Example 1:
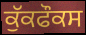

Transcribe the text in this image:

ਕੁੱਕਫੌਕਸ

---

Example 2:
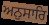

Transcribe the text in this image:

ਅਨੁਸਾਰਿ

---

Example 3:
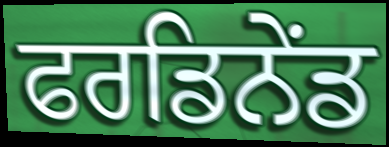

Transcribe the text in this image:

ਫਰਡਿਨੇਂਡ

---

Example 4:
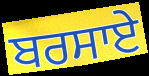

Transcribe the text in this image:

ਬਰਸਾਏ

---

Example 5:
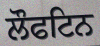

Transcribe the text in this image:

ਲੌਫਟਿਨ